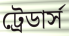
ট্রেডার্স